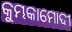
କୁମ୍ଭକାମୋଦୀ